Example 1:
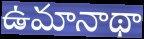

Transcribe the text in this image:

ఉమానాథా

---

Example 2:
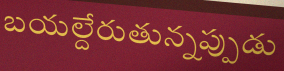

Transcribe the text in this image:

బయల్దేరుతున్నప్పుడు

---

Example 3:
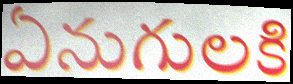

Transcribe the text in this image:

ఏనుగులకి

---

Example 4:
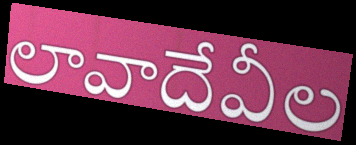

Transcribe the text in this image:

లావాదేవీల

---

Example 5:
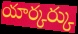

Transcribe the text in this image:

యార్కర్కు